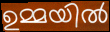
ഉമ്മയിൽ